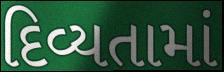
દિવ્યતામાં